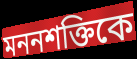
মননশক্তিকে